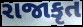
રાજાકૃત